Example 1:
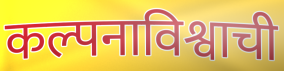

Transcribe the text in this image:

कल्पनाविश्वाची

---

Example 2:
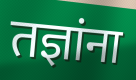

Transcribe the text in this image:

तज्ञांना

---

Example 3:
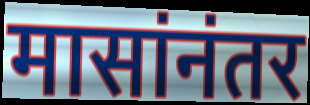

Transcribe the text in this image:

मासांनंतर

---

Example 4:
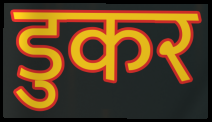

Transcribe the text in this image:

डुकर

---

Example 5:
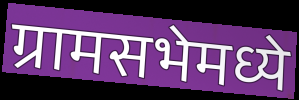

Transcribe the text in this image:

ग्रामसभेमध्ये